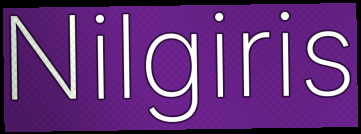
Nilgiris